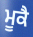
ਮੂਕੈ